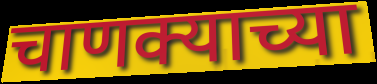
चाणक्याच्या